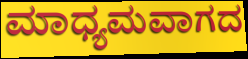
ಮಾಧ್ಯಮವಾಗದ